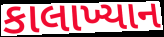
કાલાખ્યાન